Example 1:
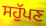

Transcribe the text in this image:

ਸਹੁੱਪਣ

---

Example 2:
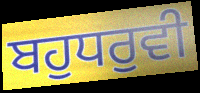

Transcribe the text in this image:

ਬਹੁਧਰੁਵੀ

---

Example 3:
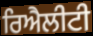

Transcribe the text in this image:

ਰਿਐਲੀਟੀ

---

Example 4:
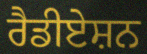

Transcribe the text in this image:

ਰੈਡੀਏਸ਼ਨ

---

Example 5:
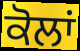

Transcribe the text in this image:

ਕੋਲਾਂ